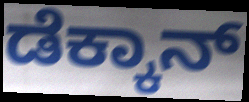
ಡೆಕ್ಕಾನ್